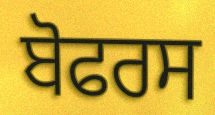
ਬੋਫਰਸ